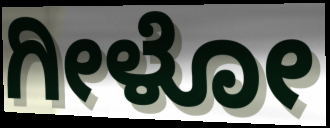
ಗೀಳೋ